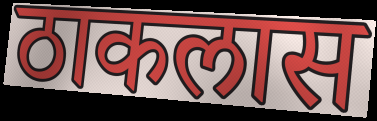
ठाकलास